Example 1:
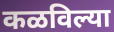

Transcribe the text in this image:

कळविल्या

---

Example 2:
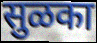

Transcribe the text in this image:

सुळका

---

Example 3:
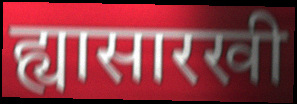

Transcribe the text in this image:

ह्यासारखी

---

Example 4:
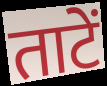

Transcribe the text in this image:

ताटें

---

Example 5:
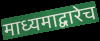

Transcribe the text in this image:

माध्यमाद्वारेच